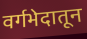
वर्गभेदातून